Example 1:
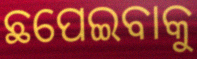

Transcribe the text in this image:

ଛପେଇବାକୁ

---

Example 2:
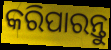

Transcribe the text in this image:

କରିପାରନ୍ତୁ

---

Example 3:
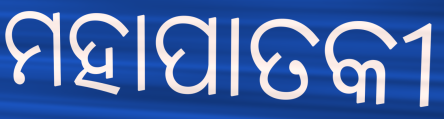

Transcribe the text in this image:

ମହାପାତକୀ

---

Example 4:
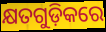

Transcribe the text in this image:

କ୍ଷତଗୁଡ଼ିକରେ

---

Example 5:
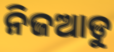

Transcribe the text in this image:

ନିଜଆଡୁ